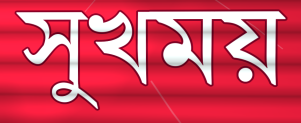
সুখময়